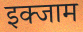
इक्जाम